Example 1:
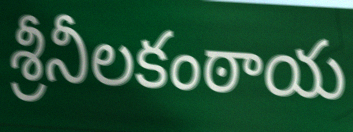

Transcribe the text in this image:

శ్రీనీలకంఠాయ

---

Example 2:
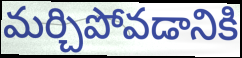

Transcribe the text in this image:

మర్చిపోవడానికి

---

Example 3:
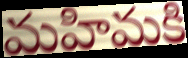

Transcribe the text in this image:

మహిమకి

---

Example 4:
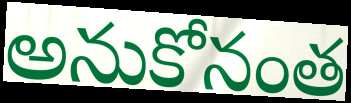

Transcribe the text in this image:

అనుకోనంత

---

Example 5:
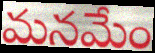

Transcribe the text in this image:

మనమేం